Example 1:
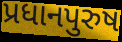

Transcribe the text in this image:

પ્રધાનપુરુષ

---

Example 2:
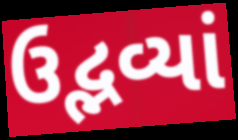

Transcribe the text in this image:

ઉદ્ભવ્યાં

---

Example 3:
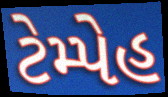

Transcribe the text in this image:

ટેમ્પેહ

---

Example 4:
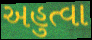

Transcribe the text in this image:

અહુત્વા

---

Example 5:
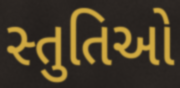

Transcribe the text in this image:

સ્તુતિઓ